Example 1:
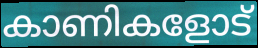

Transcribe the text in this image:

കാണികളോട്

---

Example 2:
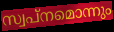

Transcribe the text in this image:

സ്വപ്നമൊന്നും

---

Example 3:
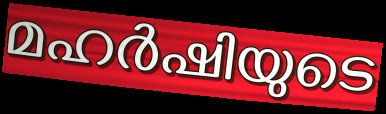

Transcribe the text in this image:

മഹർഷിയുടെ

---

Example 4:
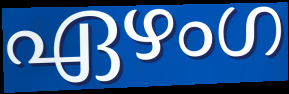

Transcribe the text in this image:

ഏഴംഗ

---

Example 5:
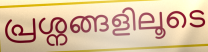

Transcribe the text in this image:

പ്രശ്നങ്ങളിലൂടെ